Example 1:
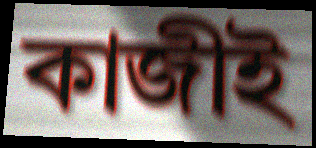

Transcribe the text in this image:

কাজীই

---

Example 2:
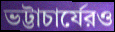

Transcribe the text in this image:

ভট্টাচার্যেরও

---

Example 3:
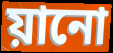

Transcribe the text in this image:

য়ানো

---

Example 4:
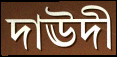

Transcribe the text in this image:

দাঊদী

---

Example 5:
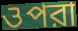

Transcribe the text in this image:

ওপরা